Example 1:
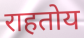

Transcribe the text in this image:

राहतोय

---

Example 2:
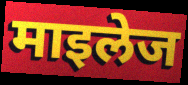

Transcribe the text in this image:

माइलेज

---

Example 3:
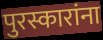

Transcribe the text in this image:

पुरस्कारांना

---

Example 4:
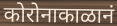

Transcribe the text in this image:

कोरोनाकाळानं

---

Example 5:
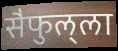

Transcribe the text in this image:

सैफुल्ला